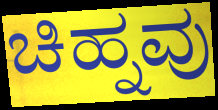
ಚಿಹ್ನವು